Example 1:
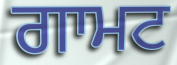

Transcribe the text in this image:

ਗਾਮਟ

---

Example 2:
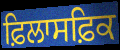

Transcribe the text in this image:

ਫ਼ਿਲਾਸਫ਼ਿਕ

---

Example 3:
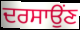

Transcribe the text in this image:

ਦਰਸਾਉਂਣ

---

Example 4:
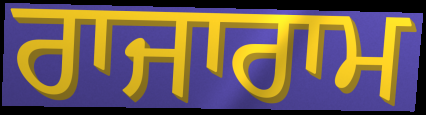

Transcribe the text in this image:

ਰਾਜਾਰਾਮ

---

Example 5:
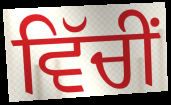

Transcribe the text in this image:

ਵਿੱਚੀਂ